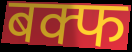
बक्फ